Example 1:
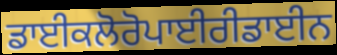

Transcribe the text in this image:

ਡਾਈਕਲੋਰੋਪਾਈਰੀਡਾਈਨ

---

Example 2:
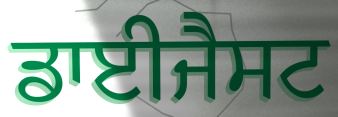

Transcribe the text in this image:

ਡਾਈਜੈਸਟ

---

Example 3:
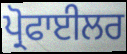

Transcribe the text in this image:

ਪ੍ਰੋਫਾਈਲਰ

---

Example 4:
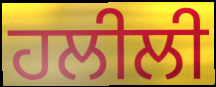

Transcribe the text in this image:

ਹਲੀਲੀ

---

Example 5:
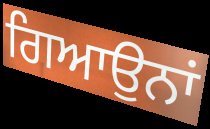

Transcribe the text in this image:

ਗਿਆਉਨਾਂ